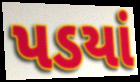
પડયાં